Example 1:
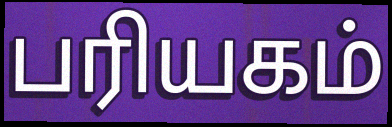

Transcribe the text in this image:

பரியகம்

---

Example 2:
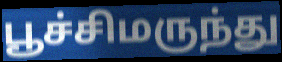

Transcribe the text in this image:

பூச்சிமருந்து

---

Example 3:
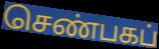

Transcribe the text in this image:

செண்பகப்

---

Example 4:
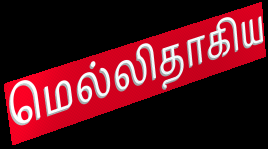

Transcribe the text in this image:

மெல்லிதாகிய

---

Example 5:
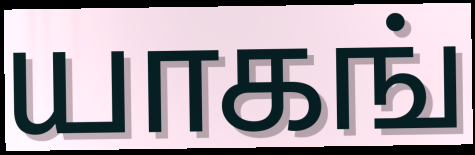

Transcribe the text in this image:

யாகங்